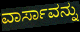
ವಾರ್ಸಾವನ್ನು